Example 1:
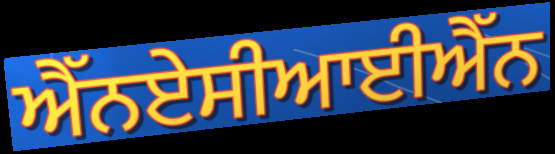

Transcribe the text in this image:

ਐੱਨਏਸੀਆਈਐੱਨ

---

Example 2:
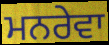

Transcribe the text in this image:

ਮਨਰੇਵਾ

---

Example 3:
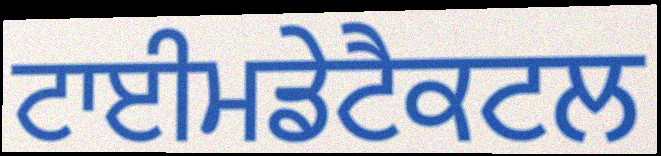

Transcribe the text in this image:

ਟਾਈਮਡੇਟੈਕਟਲ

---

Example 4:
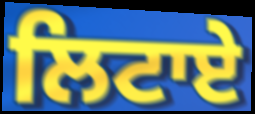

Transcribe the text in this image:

ਲਿਟਾਏ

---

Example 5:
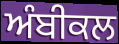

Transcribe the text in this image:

ਅੰਬੀਕਲ